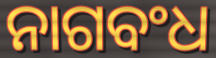
ନାଗବଂଧ